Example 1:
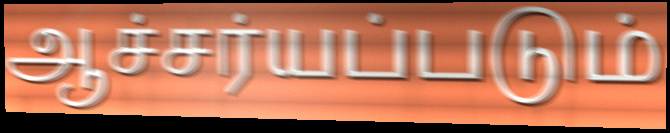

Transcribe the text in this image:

ஆச்சர்யப்படும்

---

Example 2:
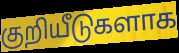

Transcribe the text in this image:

குறியீடுகளாக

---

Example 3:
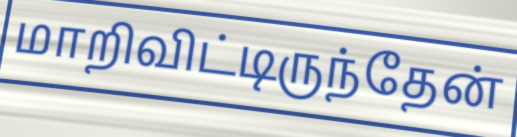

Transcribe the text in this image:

மாறிவிட்டிருந்தேன்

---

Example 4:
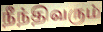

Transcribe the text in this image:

நீந்திவரும்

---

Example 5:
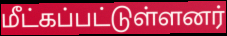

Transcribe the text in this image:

மீட்கப்பட்டுள்ளனர்